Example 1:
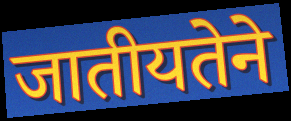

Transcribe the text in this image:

जातीयतेने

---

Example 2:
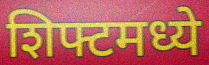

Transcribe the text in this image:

शिफ्टमध्ये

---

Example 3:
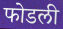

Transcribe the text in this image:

फोडली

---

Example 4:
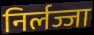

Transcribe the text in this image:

निर्लज्जा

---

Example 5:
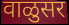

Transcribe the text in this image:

वाळुसर